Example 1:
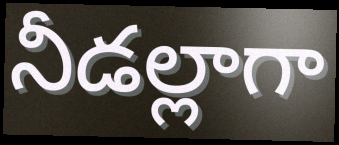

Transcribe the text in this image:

నీడల్లాగా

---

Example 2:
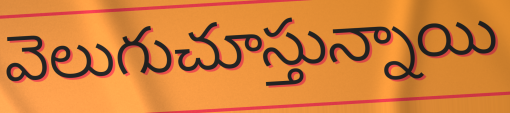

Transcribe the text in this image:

వెలుగుచూస్తున్నాయి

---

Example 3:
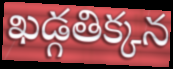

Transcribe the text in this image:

ఖడ్గతిక్కన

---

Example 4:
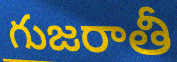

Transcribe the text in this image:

గుజరాతీ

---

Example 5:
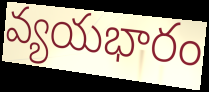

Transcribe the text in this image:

వ్యయభారం